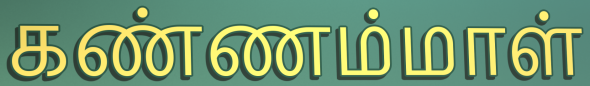
கண்ணம்மாள்